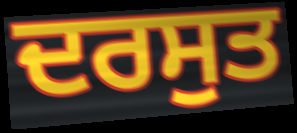
ਦਰਸੁਤ